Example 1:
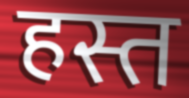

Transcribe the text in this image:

हस्त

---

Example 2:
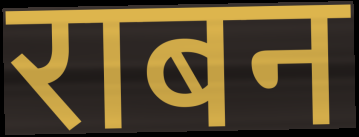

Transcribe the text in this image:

राबन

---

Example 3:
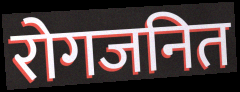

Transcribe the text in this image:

रोगजनित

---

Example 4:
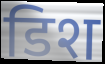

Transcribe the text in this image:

डिश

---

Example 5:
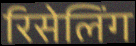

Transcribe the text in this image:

रिसेलिंग